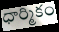
ధార్మికం